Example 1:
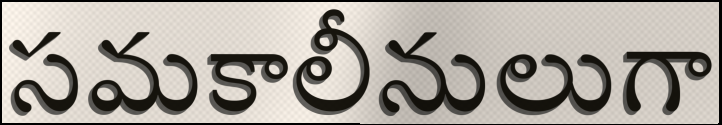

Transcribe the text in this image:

సమకాలీనులుగా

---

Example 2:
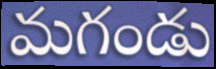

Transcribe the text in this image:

మగండు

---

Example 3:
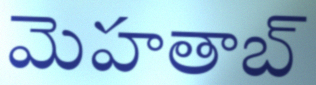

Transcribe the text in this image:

మెహతాబ్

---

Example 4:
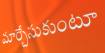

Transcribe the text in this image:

మార్చేసుకుంటూ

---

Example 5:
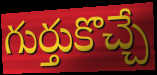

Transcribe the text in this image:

గుర్తుకొచ్చే